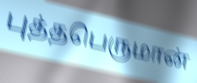
புத்தபெருமான்